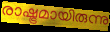
രാഷ്ട്രമായിരുന്നു